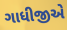
ગાધીજીએ